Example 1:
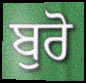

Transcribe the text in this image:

ਬੁਰੋ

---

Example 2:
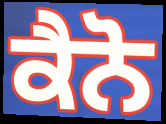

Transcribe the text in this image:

ਕੈਨੋ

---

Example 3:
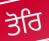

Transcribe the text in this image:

ਤੋਰਿ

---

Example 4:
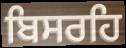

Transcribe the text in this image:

ਬਿਸਰਹਿ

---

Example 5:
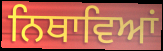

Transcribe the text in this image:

ਨਿਥਾਵਿਆਂ